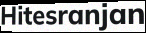
Hitesranjan